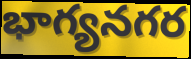
భాగ్యనగర